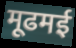
मूढमई